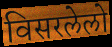
विसरलेलो